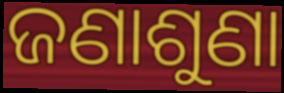
ଜଣାଶୁଣା